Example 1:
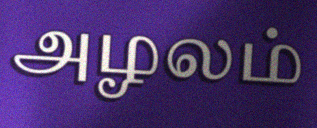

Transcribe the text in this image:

அழலம்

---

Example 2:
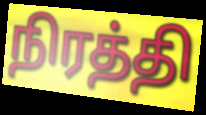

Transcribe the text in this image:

நிரத்தி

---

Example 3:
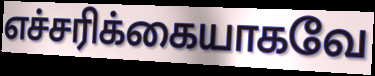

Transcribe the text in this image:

எச்சரிக்கையாகவே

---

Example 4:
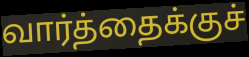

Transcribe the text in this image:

வார்த்தைக்குச்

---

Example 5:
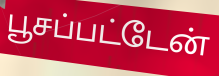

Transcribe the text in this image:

பூசப்பட்டேன்